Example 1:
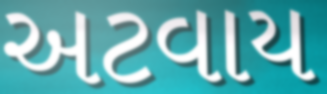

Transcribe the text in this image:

અટવાય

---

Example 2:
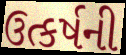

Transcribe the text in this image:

ઉત્કર્ષની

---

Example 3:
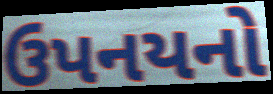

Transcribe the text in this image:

ઉપનયનો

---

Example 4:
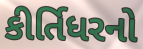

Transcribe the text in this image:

કીર્તિધરનો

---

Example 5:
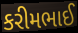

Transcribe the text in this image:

કરીમભાઈ